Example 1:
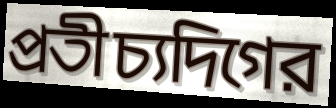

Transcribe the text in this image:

প্রতীচ্যদিগের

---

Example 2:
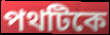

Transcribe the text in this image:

পথটিকে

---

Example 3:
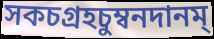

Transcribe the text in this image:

সকচগ্রহচুম্বনদানম্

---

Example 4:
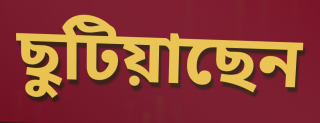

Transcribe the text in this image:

ছুটিয়াছেন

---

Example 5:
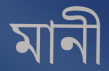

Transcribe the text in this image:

মানী